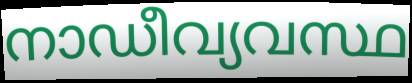
നാഡീവ്യവസ്ഥ